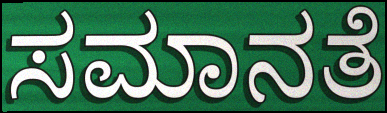
ಸಮಾನತೆ